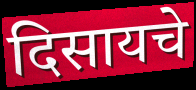
दिसायचे